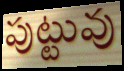
పుట్టువు